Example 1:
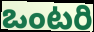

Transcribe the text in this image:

ఒంటరి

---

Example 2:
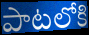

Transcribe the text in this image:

పాటలోకి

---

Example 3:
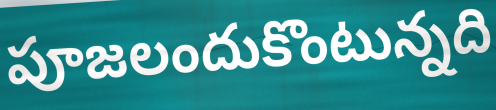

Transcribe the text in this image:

పూజలందుకొంటున్నది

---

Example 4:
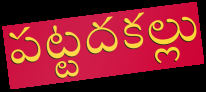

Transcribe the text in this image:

పట్టదకల్లు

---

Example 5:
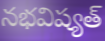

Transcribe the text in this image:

నభవిష్యత్